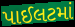
પાઈલટમાં